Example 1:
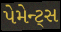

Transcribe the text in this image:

પેમેન્ટ્સ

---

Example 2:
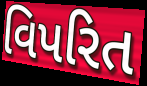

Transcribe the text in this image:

વિપરિત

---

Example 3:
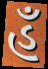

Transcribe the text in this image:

હઁ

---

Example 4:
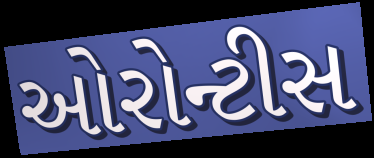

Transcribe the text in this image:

ઓરોન્ટીસ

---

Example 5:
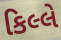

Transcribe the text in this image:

કિલ્લે